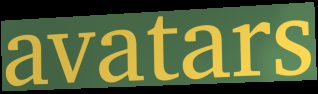
avatars